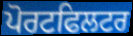
ਪੋਰਟਫਿਲਟਰ